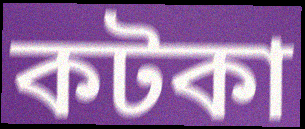
কটকা